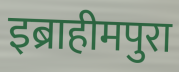
इब्राहीमपुरा